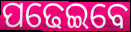
ପଢେଇବେ